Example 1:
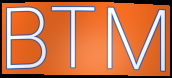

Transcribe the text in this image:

BTM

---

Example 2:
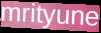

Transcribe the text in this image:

mrityune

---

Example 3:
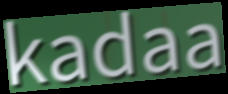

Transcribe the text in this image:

kadaa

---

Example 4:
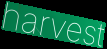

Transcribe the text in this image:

harvest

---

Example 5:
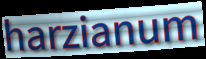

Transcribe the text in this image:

harzianum